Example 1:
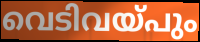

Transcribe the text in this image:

വെടിവയ്പും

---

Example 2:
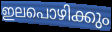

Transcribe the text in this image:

ഇലപൊഴിക്കും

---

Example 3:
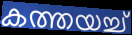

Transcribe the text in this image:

കത്തയച്ച്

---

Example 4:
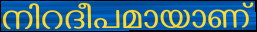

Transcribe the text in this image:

നിറദീപമായാണ്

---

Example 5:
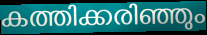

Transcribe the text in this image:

കത്തിക്കരിഞ്ഞും